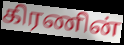
கிரணின்